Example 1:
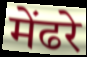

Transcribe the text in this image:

मेंढरे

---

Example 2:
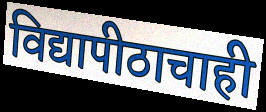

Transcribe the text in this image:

विद्यापीठाचाही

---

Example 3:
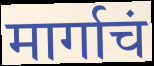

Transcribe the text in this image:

मार्गाचं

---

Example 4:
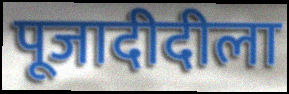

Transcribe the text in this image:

पूजादीदीला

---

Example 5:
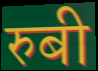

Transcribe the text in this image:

रुबी